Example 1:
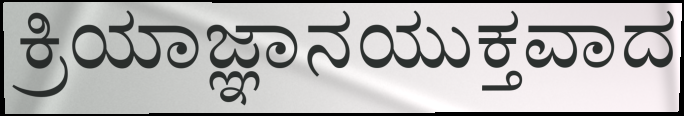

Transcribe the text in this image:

ಕ್ರಿಯಾಜ್ಞಾನಯುಕ್ತವಾದ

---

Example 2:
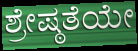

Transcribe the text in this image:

ಶ್ರೇಷ್ಠತೆಯೇ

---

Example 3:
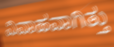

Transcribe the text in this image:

ವಿವಾಹವಾಗಿತ್ತು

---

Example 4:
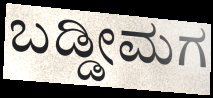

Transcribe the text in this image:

ಬಡ್ಡೀಮಗ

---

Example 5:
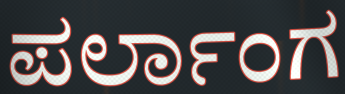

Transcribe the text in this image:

ಪರ್ಲಾಂಗ